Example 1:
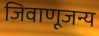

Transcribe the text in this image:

जिवाणूजन्य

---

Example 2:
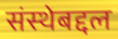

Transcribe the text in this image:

संस्थेबद्दल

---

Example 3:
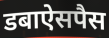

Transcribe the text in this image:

डबाऐसपैस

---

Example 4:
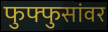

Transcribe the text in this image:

फुफ्फुसांवर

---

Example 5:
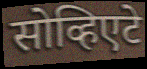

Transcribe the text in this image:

सोव्हिएटे